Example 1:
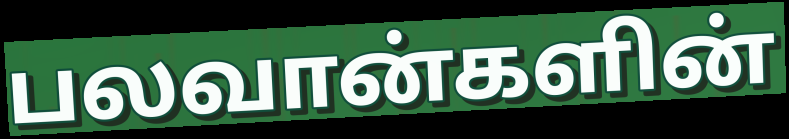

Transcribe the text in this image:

பலவான்களின்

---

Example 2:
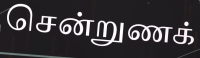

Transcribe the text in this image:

சென்றுணக்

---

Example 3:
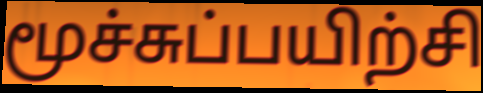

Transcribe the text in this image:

மூச்சுப்பயிற்சி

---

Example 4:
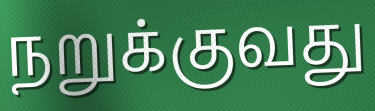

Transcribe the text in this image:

நறுக்குவது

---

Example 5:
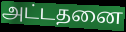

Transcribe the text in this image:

அட்டதனை